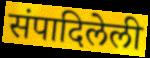
संपादिलेली